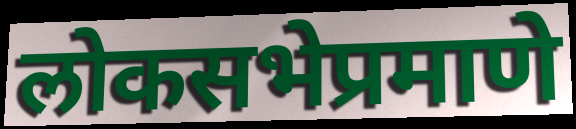
लोकसभेप्रमाणे